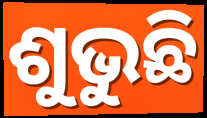
ଶୁଭୁଛି